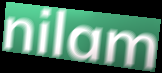
nilam